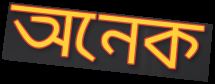
অনেক